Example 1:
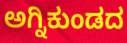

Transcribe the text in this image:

ಅಗ್ನಿಕುಂಡದ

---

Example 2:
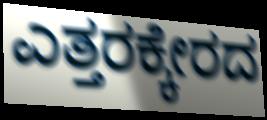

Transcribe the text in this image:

ಎತ್ತರಕ್ಕೇರದ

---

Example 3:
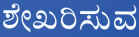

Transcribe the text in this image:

ಶೇಖರಿಸುವ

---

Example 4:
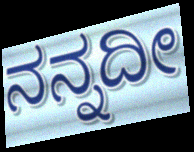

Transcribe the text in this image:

ನನ್ನದೀ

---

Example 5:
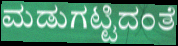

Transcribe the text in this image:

ಮಡುಗಟ್ಟಿದಂತೆ